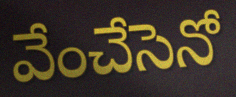
వేంచేసెనో